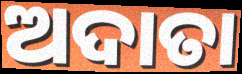
ଅଦାତା